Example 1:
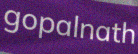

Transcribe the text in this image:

gopalnath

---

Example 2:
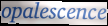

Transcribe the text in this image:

opalescence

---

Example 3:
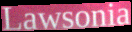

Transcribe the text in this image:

Lawsonia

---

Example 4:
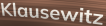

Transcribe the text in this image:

Klausewitz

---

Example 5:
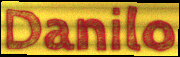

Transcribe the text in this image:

Danilo